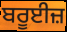
ਬਰੂਈਜ਼